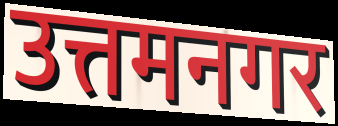
उत्तमनगर